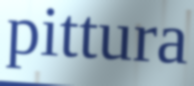
pittura